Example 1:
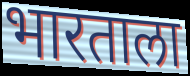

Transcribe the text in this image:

भारताला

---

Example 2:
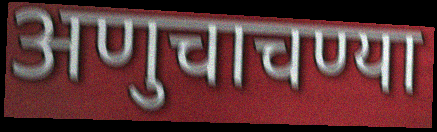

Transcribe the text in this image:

अणुचाचण्या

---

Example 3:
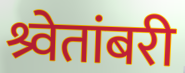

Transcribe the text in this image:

श्र्वेतांबरी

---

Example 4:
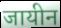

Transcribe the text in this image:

जायीन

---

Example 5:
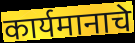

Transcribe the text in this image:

कार्यमानाचे